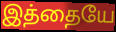
இத்தையே